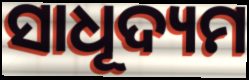
ସାଧୂଦ୍ୟମ